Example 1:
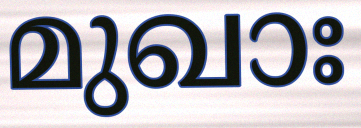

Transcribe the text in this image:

മുഖാഃ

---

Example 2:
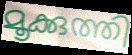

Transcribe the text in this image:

മൂക്കുത്തി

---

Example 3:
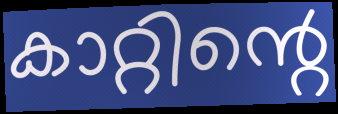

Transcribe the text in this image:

കാറ്റിന്റെ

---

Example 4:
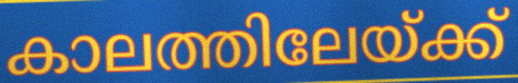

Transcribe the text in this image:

കാലത്തിലേയ്ക്ക്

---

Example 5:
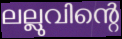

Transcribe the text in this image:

ലല്ലുവിന്റെ